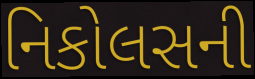
નિકોલસની